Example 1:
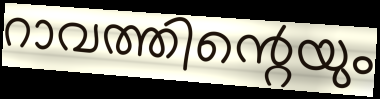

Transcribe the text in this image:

റാവത്തിന്റെയും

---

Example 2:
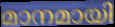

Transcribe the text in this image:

മാനമായി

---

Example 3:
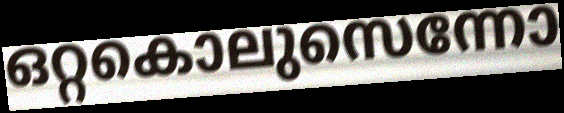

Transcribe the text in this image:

ഒറ്റകൊലുസെന്നോ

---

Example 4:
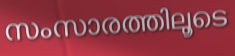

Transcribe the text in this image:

സംസാരത്തിലൂടെ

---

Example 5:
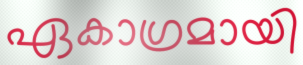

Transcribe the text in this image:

ഏകാഗ്രമായി